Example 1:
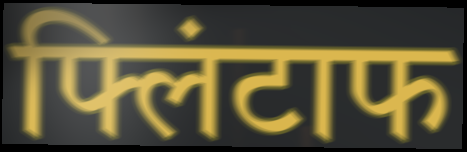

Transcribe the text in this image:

फ्लिंटाफ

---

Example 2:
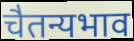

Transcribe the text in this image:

चैतन्यभाव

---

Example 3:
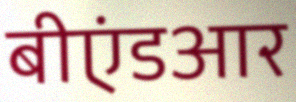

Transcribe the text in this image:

बीएंडआर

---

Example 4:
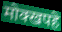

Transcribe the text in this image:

मोक्खपहे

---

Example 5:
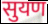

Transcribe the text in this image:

सुयण